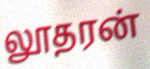
லூதரன்